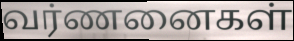
வர்ணனைகள்